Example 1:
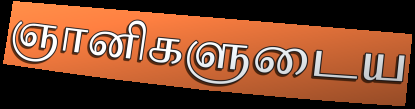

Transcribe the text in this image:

ஞானிகளுடைய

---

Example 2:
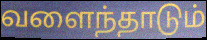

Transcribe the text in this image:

வளைந்தாடும்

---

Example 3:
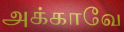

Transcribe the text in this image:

அக்காவே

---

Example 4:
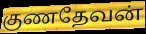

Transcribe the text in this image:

குணதேவன்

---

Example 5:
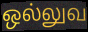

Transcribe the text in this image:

ஒல்லுவ